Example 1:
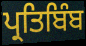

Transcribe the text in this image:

ਪ੍ਰਤਿਬਿੰਬ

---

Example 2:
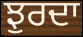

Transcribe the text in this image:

ਝੁਰਦਾ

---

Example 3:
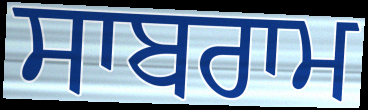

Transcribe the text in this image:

ਸਾਬਰਾਮ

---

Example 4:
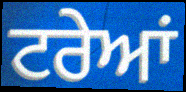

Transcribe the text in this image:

ਟਰੇਆਂ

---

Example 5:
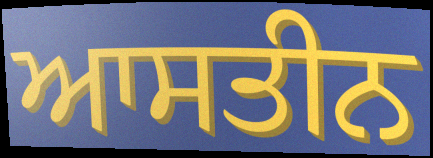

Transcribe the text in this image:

ਆਸਤੀਨ